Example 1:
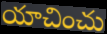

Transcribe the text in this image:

యాచించు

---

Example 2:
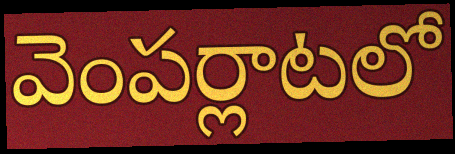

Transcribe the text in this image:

వెంపర్లాటలో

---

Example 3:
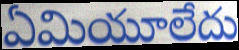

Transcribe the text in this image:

ఏమియూలేదు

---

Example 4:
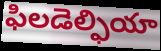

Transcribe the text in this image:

ఫిలడెల్ఫియా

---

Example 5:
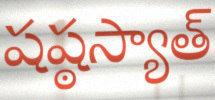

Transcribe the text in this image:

షష్ఠస్యాత్